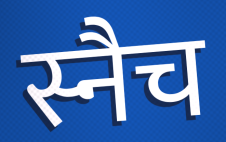
स्नैच